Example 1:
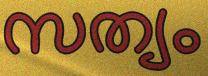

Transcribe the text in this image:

സത്യം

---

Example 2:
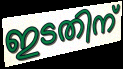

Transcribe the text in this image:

ഇടതിന്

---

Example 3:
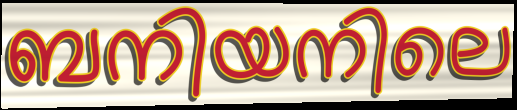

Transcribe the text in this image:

ബനിയനിലെ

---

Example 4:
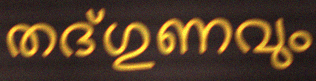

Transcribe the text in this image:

തദ്ഗുണവും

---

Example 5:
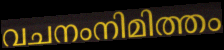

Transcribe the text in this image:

വചനംനിമിത്തം